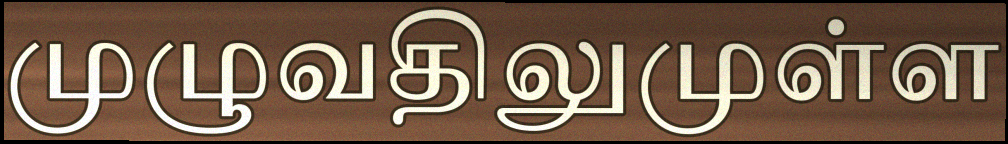
முழுவதிலுமுள்ள